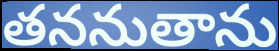
తననుతాను